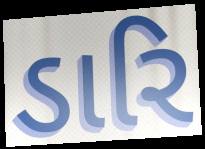
ડારિ